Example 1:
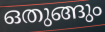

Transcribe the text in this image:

ഒതുങ്ങും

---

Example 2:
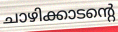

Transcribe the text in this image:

ചാഴിക്കാടന്റെ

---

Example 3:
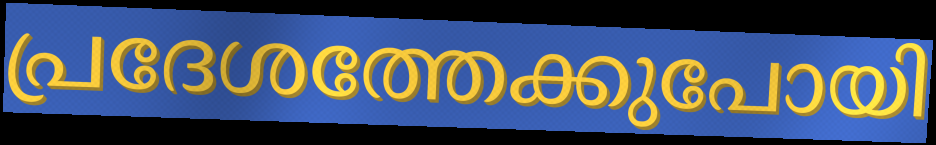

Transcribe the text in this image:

പ്രദേശത്തേക്കുപോയി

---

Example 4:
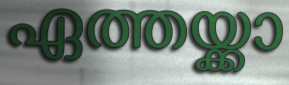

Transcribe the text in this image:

ഏത്തയ്ക്കാ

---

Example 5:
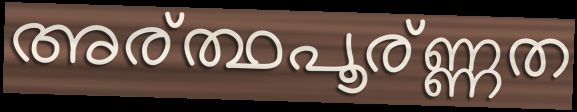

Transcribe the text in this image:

അര്ത്ഥപൂര്ണ്ണത